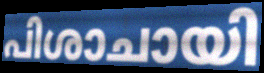
പിശാചായി